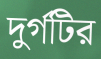
দুর্গটির